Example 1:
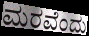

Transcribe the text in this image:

ಮರವೆಂದು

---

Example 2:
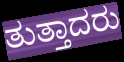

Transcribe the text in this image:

ತುತ್ತಾದರು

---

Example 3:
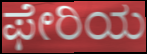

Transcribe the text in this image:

ಫೇರಿಯ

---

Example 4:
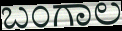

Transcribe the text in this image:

ಬಂಗಾಲ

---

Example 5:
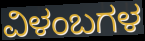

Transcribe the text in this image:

ವಿಳಂಬಗಳ